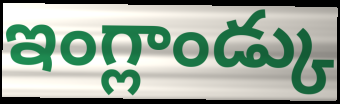
ఇంగ్లాండ్కు